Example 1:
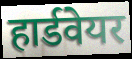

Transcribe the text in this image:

हार्डवेयर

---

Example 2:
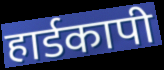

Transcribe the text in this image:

हार्डकापी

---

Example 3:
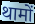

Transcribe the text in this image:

थामों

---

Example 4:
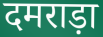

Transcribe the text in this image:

दमराड़ा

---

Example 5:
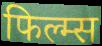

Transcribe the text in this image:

फिल्म्स